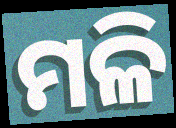
ମଳି